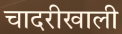
चादरीखाली